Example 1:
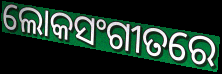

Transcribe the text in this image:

ଲୋକସଂଗୀତରେ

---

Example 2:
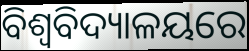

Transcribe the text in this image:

ବିଶ୍ୱବିଦ୍ୟାଳୟରେ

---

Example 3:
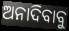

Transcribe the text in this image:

ଅନାଦିବାବୁ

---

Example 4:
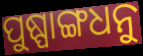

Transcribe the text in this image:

ପୁଷ୍ପାଙ୍ଗଧନୁ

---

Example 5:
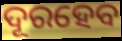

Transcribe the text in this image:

ଦୂରହେବ